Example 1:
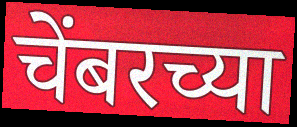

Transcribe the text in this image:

चेंबरच्या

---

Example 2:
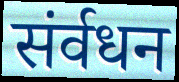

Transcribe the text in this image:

संर्वधन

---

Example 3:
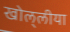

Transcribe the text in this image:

खोल्लीया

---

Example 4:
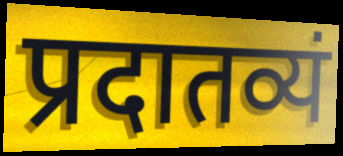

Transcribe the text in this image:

प्रदातव्यं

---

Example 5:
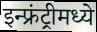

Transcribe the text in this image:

इन्फ्रंट्रीमध्ये